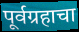
पूर्वग्रहाचा